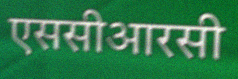
एससीआरसी